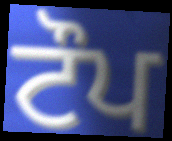
ਟੌਪ